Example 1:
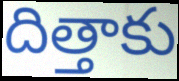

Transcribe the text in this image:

దిత్తాకు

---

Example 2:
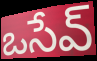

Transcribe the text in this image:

ఒసేవ్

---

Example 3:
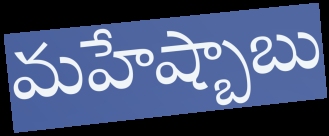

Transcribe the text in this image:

మహేష్బాబు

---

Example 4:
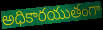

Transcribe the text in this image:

అధికారయుతంగా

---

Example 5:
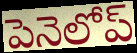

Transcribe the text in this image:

పెనెలోప్